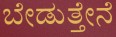
ಬೇಡುತ್ತೇನೆ